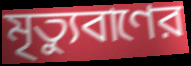
মৃত্যুবাণের